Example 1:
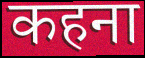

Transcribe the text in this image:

कहना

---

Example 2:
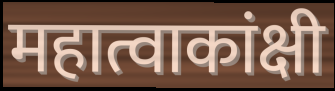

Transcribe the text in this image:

महात्वाकांक्षी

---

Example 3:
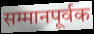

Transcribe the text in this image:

सम्मानपूर्वक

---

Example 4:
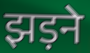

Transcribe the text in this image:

झड़ने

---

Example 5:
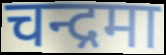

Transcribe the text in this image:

चन्द्रमा